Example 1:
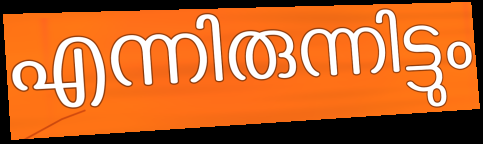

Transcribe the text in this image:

എന്നിരുന്നിട്ടും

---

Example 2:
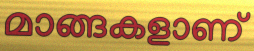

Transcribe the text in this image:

മാങ്ങകളാണ്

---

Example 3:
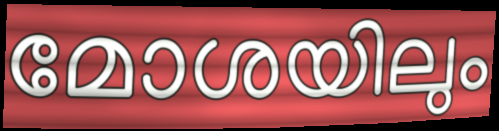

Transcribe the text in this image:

മോശയിലും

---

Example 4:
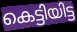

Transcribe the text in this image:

കെട്ടിയിട്ട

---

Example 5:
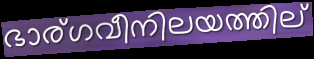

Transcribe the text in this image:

ഭാര്ഗവീനിലയത്തില്